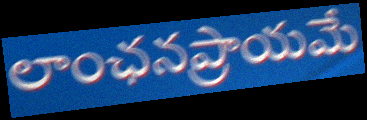
లాంఛనప్రాయమే